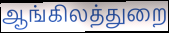
ஆங்கிலத்துறை